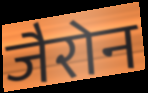
जैरोन